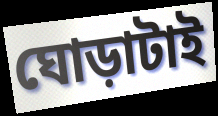
ঘোড়াটাই